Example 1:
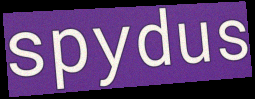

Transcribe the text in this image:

spydus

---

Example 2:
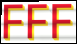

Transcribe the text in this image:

FFF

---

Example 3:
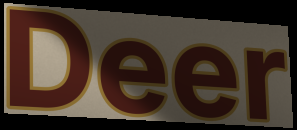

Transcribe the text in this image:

Deer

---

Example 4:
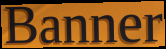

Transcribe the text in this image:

Banner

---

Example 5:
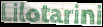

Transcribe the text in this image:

Lilotarini